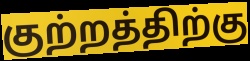
குற்றத்திற்கு